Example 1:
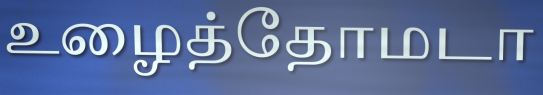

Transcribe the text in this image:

உழைத்தோமடா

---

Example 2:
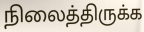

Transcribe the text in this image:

நிலைத்திருக்க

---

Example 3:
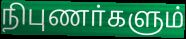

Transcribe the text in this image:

நிபுணர்களும்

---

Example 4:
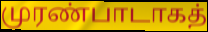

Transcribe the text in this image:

முரண்பாடாகத்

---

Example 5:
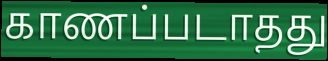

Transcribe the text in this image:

காணப்படாதது